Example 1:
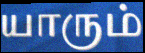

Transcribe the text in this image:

யாரும்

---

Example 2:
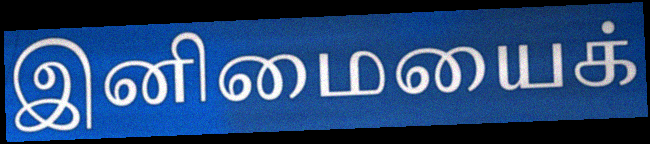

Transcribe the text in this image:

இனிமையைக்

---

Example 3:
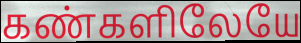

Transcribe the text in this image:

கண்களிலேயே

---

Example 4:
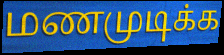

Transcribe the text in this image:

மணமுடிக்க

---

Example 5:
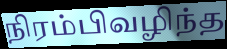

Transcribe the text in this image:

நிரம்பிவழிந்த